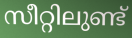
സീറ്റിലുണ്ട്